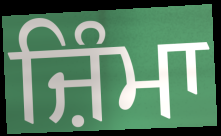
ਜ਼ਿੰਮਾ